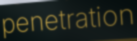
penetration